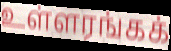
உள்ளரங்கக்